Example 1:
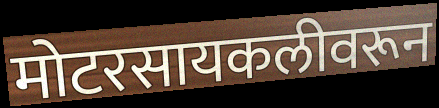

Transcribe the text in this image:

मोटरसायकलीवरून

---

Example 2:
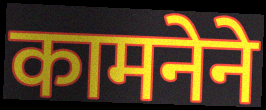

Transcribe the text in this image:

कामनेने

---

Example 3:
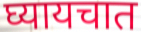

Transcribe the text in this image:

घ्यायचात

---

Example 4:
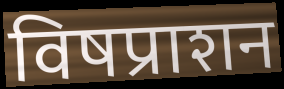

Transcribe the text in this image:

विषप्राशन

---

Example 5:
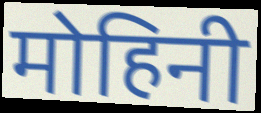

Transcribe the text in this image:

मोहिनी